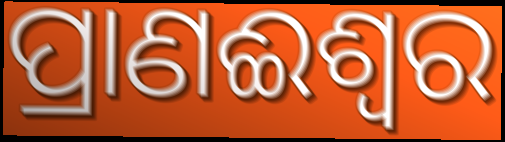
ପ୍ରାଣଈଶ୍ୱର